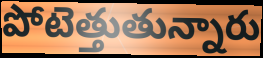
పోటెత్తుతున్నారు